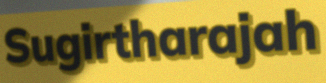
Sugirtharajah